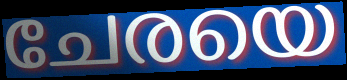
ചേരയെ